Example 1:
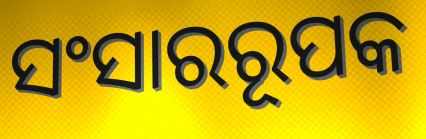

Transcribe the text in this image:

ସଂସାରରୂପକ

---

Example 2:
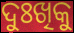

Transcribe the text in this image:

ଦୁଃଖିକୁ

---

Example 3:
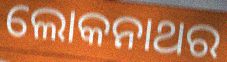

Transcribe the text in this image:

ଲୋକନାଥର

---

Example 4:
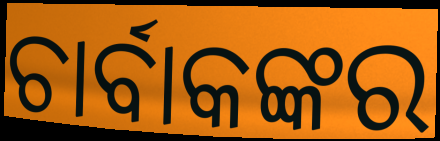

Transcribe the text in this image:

ଚାର୍ବାକଙ୍କର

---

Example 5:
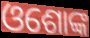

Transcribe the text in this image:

ଓଶୋଙ୍କ